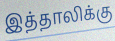
இத்தாலிக்கு